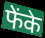
फेंके